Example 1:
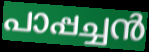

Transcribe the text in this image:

പാപ്പച്ചൻ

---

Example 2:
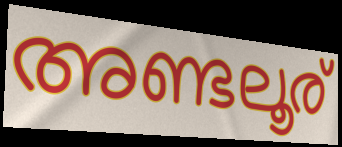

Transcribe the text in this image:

അണ്ടലൂര്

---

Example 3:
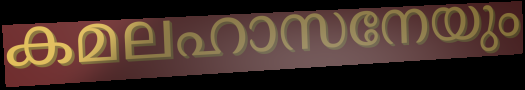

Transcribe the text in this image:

കമലഹാസനേയും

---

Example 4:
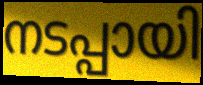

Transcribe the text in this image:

നടപ്പായി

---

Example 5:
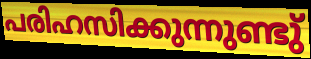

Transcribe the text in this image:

പരിഹസിക്കുന്നുണ്ടു്